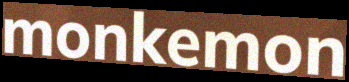
monkemon